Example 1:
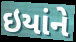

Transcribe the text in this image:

ઇયાંને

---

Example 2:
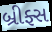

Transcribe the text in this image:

બ્રીફ્સ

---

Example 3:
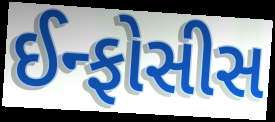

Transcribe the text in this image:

ઈન્ફોસીસ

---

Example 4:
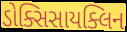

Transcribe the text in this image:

ડોક્સિસાયક્લિન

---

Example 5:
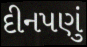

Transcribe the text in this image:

દીનપણું